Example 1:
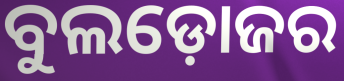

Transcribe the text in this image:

ବୁଲଡ଼ୋଜର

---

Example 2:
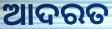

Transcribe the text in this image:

ଆଦରତ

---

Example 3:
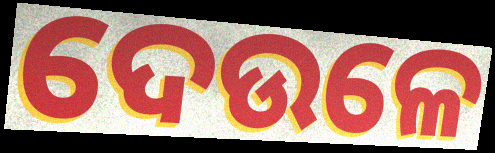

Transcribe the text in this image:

ଦେଉଳେ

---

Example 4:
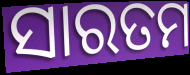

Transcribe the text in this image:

ସାରତମ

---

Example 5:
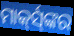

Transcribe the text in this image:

ମାର୍କ୍‍ସ୍‍ଙ୍କର